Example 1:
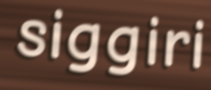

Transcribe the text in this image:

siggiri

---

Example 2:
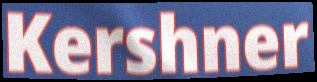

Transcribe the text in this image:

Kershner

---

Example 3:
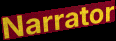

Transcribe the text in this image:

Narrator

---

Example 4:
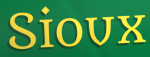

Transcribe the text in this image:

Sioux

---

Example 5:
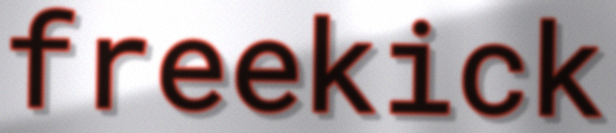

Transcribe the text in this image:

freekick